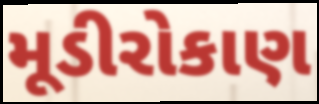
મૂડીરોકાણ